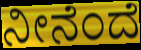
ನೀನೆಂದೆ